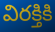
విరక్తికి